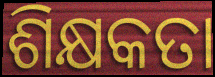
ଶିକ୍ଷକତା